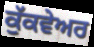
ਕੁੱਕਵੇਅਰ